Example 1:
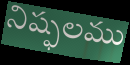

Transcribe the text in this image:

నిష్ఫలము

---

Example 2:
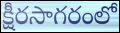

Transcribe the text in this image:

క్షీరసాగరంలో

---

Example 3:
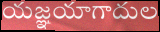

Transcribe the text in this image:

యజ్ఞయాగాదుల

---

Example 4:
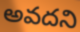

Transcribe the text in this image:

అవదని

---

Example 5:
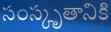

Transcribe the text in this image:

సంస్కృతానికి